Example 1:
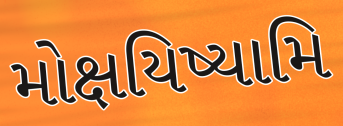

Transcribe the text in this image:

મોક્ષયિષ્યામિ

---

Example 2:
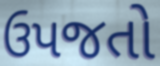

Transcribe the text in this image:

ઉપજતો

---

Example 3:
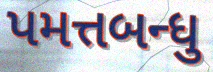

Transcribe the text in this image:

પમત્તબન્ધુ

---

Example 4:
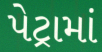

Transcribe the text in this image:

પેટ્રામાં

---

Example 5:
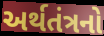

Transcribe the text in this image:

અર્થતંત્રનો